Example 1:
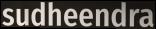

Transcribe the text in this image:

sudheendra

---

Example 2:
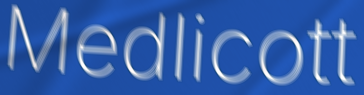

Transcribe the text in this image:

Medlicott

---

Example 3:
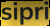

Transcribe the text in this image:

sipri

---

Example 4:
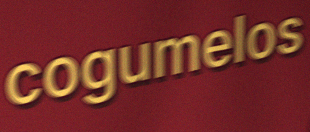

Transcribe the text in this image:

cogumelos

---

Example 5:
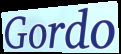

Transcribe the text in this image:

Gordo